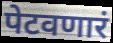
पेटवणारं